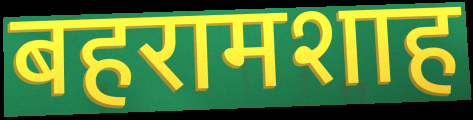
बहरामशाह